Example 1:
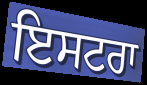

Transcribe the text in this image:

ਇਸਟਰਾ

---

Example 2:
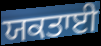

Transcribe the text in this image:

ਯਕਤਾਈ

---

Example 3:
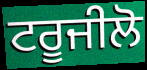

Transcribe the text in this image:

ਟਰੂਜੀਲੋ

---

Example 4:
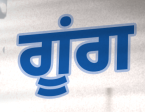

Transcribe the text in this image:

ਗੂਂਗ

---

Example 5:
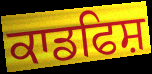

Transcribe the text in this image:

ਕਾਡਫਿਸ਼